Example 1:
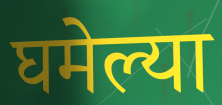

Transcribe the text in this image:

घमेल्या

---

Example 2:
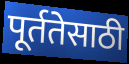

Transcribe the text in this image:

पूर्ततेसाठी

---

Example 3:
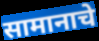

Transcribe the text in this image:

सामानाचे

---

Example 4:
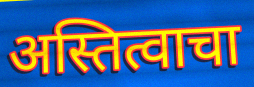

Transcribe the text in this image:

अस्तित्वाचा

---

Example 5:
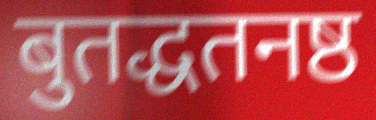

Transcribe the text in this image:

बुतद्धतनष्ठ